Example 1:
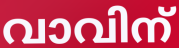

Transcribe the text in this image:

വാവിന്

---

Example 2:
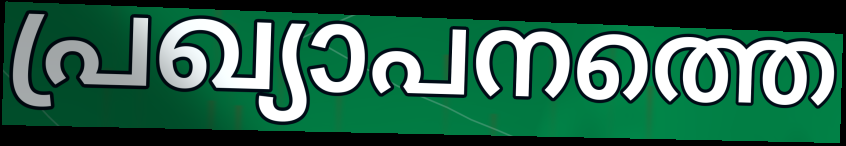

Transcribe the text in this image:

പ്രഖ്യാപനത്തെ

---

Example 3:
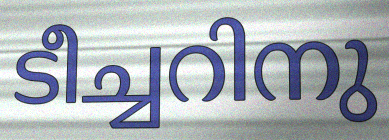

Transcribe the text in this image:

ടീച്ചറിനു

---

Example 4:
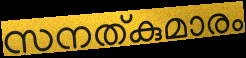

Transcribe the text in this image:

സനത്കുമാരം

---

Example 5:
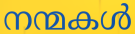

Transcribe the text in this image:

നന്മകൾ